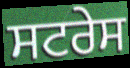
ਸਟਰੇਸ